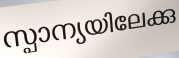
സ്പാന്യയിലേക്കു